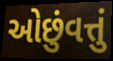
ઓછુંવત્તું